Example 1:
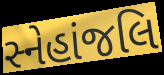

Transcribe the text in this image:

સ્નેહાંજલિ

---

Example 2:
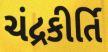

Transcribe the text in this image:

ચંદ્રકીર્તિ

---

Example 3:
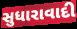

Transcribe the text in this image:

સુધારાવાદી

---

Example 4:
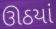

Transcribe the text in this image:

ઊઠયાં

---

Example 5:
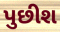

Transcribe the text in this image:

પુછીશ